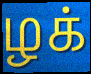
ழக்